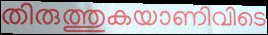
തിരുത്തുകയാണിവിടെ